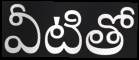
వీటితో